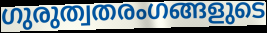
ഗുരുത്വതരംഗങ്ങളുടെ